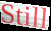
Still